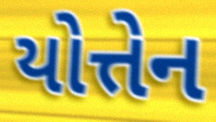
યોત્તેન